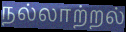
நல்லாற்றல்